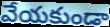
వేయకుండా